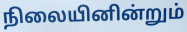
நிலையினின்றும்